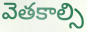
వెతకాల్సి